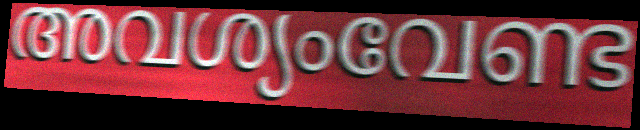
അവശ്യംവേണ്ട